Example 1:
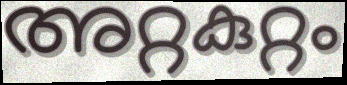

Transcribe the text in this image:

അറ്റകുറ്റം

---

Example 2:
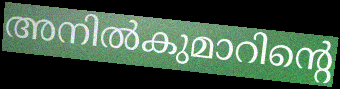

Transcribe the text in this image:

അനിൽകുമാറിന്റെ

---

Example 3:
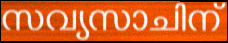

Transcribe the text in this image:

സവ്യസാചിന്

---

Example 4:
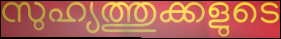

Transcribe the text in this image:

സുഹ്യത്തുക്കളുടെ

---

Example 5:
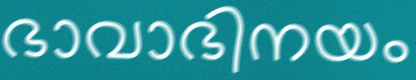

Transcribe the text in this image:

ഭാവാഭിനയം